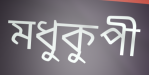
মধুকুপী